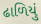
ઢાળિયું